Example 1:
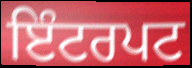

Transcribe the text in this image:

ਇੰਟਰਪਟ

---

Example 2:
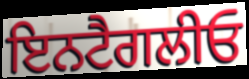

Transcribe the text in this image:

ਇਨਟੈਗਲੀਓ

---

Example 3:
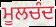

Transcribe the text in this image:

ਮੂਲਚੰਦ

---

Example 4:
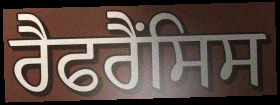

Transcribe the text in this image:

ਰੈਫਰੈਂਸਿਸ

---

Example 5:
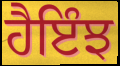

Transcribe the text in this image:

ਹੈਇੰਝ